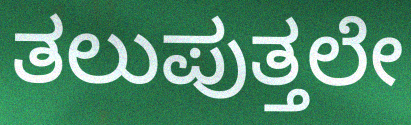
ತಲುಪುತ್ತಲೇ